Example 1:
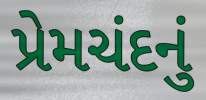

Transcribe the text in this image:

પ્રેમચંદનું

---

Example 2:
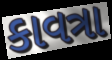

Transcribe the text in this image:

કાવત્રા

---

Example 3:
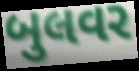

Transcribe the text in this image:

બુલવર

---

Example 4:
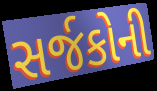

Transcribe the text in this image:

સર્જકોની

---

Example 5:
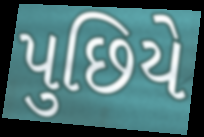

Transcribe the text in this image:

પુછિયે